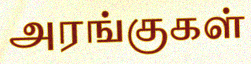
அரங்குகள்